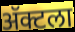
ॲक्टला